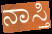
ನಾಸ್ತಿ